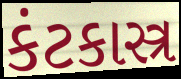
કંટકાસ્ત્ર